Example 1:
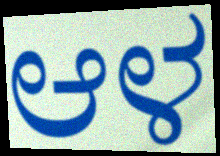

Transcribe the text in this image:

ಆಳ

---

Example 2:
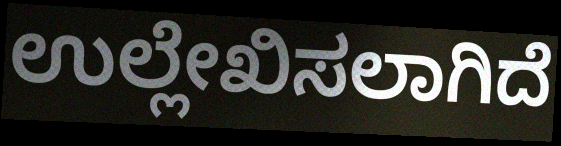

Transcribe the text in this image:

ಉಲ್ಲೇಖಿಸಲಾಗಿದೆ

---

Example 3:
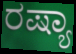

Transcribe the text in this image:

ರಷ್ಯಾ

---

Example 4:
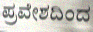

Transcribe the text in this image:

ಪ್ರವೇಶದಿಂದ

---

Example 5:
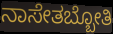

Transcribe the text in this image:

ನಾಸೇತಬ್ಬೋತಿ